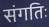
संगतिः